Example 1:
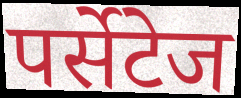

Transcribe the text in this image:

पर्सेटेज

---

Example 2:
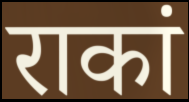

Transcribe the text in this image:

राकां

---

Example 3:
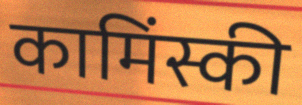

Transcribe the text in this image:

कामिंस्की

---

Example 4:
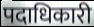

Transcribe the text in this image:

पदाधिकारी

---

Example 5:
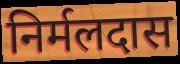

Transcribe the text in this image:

निर्मलदास